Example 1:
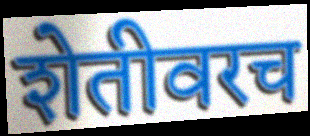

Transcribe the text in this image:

शेतीवरच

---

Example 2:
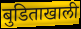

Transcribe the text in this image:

बुडिताखाली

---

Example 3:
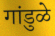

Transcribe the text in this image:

गांडुळे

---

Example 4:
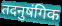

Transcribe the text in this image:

तदनुषंगिक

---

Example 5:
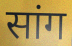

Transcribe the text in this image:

सांग